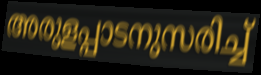
അരുളപ്പാടനുസരിച്ച്